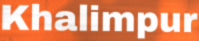
Khalimpur